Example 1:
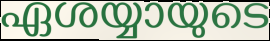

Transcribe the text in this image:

ഏശയ്യായുടെ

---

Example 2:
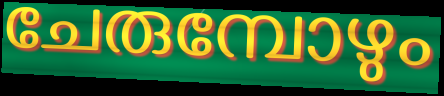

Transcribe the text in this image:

ചേരുമ്പോഴും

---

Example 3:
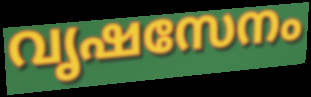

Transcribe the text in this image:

വൃഷസേനം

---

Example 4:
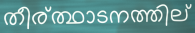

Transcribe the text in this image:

തീര്ത്ഥാടനത്തില്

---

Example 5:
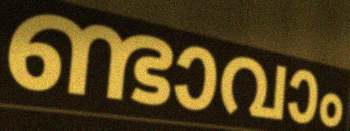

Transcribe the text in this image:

ണ്ടാവാം